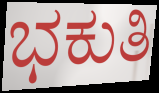
ಭಕುತಿ